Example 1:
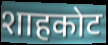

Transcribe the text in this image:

शाहकोट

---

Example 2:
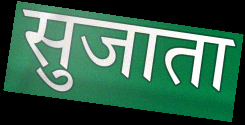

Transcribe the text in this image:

सुजाता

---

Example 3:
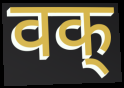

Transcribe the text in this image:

वक्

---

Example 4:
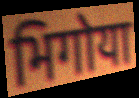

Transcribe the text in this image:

भिगोया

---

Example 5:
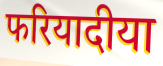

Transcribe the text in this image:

फरियादीया